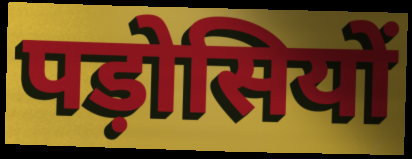
पड़ोसियों